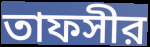
তাফসীর